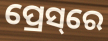
ପ୍ରେସ୍‌ରେ